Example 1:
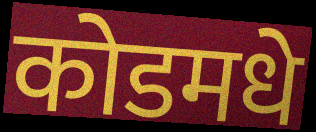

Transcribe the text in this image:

कोडमधे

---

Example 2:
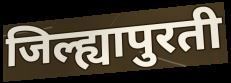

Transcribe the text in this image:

जिल्ह्यापुरती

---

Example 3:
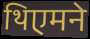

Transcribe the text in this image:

थिएमने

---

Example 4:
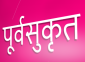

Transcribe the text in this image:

पूर्वसुकृत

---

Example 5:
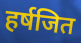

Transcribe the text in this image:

हर्षजित